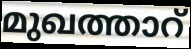
മുഖത്താറ്